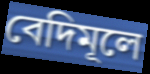
বেদিমূলে